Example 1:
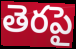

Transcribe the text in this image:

తెరపై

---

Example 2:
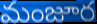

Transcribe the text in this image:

మంజూర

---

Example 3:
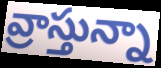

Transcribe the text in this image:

వ్రాస్తున్నా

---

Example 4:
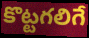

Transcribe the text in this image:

కొట్టగలిగే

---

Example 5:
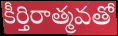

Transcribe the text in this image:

కీర్తిరాత్మవతో